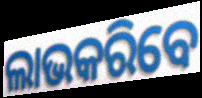
ଲାଭକରିବେ